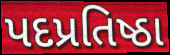
પદપ્રતિષ્ઠા